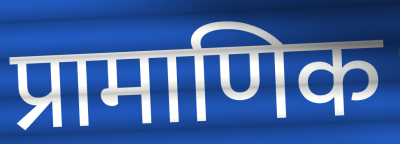
प्रामाणिक